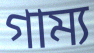
গাম্য